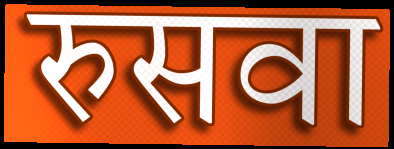
रुसवा